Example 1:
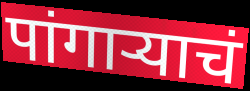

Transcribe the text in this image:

पांगाऱ्याचं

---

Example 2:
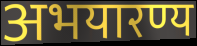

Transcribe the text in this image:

अभयारण्य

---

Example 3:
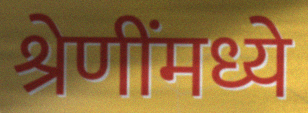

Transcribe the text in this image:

श्रेणींमध्ये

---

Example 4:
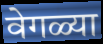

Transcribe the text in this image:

वेगळ्या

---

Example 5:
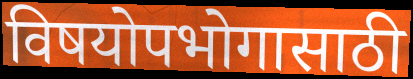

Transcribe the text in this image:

विषयोपभोगासाठी